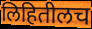
लिहितीलच